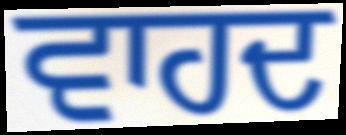
ਵਾਹਦ